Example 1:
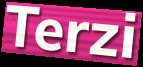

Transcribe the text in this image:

Terzi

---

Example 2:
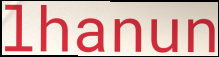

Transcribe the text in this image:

lhanun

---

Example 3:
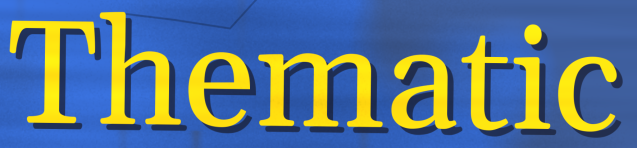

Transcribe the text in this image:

Thematic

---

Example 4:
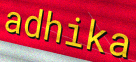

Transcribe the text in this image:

adhika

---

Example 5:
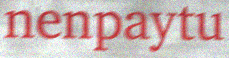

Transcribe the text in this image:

nenpaytu